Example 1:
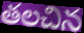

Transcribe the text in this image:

తలచిన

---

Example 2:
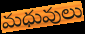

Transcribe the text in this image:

మధువులు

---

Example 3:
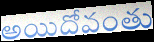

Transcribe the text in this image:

అయిదోవంతు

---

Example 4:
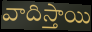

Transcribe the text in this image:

వాదిస్తాయి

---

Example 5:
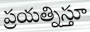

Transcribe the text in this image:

ప్రయత్నిస్తూ